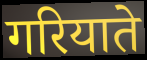
गरियाते